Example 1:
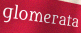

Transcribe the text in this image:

glomerata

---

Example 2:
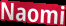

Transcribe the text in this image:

Naomi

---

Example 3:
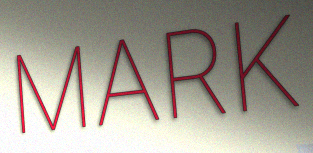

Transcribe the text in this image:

MARK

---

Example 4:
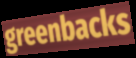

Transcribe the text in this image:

greenbacks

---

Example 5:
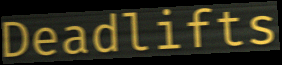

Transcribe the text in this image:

Deadlifts